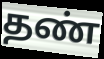
தண்